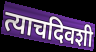
त्याचदिवशी